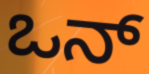
ಒನ್